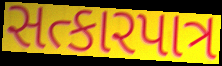
સત્કારપાત્ર